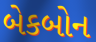
બેકબોન